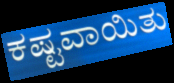
ಕಷ್ಟವಾಯಿತು